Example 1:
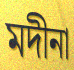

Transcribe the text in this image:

মদীনা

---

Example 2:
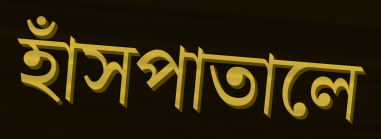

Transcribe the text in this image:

হাঁসপাতালে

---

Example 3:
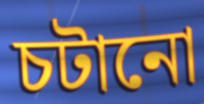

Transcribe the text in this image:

চটানো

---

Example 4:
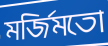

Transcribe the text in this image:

মর্জিমতো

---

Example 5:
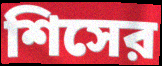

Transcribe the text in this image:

শিসের